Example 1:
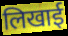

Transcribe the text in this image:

लिखाई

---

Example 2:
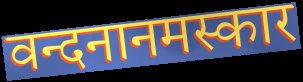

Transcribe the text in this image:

वन्दनानमस्कार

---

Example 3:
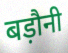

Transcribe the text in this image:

बड़ौनी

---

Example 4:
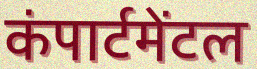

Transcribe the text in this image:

कंपार्टमेंटल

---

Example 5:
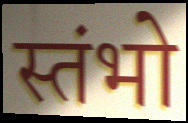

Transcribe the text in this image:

स्तंभो